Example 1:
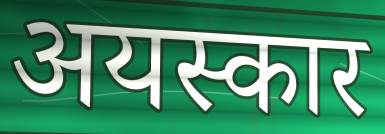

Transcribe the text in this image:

अयस्कार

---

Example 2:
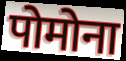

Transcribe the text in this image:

पोमोना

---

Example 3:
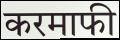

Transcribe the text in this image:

करमाफी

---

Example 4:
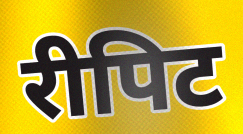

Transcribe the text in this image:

रीपिट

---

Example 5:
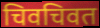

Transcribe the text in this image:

चिवचिवत